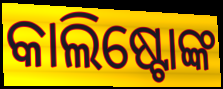
କାଲିଷ୍ଟୋଙ୍କ